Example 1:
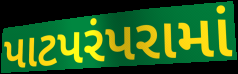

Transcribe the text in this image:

પાટપરંપરામાં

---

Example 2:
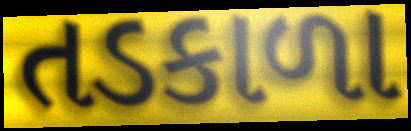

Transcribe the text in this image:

તડકાળા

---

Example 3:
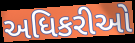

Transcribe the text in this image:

અધિકરીઓ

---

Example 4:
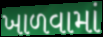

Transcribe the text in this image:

ખાળવામાં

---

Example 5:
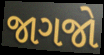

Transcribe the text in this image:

જાગજો